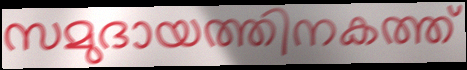
സമുദായത്തിനകത്ത്